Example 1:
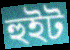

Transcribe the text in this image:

হুইট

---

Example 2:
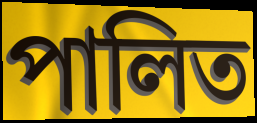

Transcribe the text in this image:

পালিত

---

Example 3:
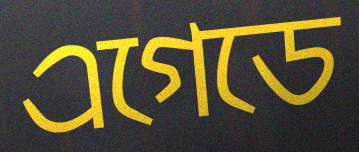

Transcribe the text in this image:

এগেডে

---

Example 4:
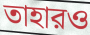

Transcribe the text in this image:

তাহারও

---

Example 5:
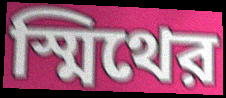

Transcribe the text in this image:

স্মিথের